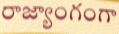
రాజ్యాంగంగా